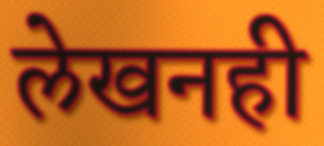
लेखनही